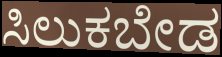
ಸಿಲುಕಬೇಡ